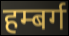
हम्बर्ग